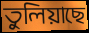
তুলিয়াছে